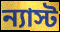
ন্যাস্ট